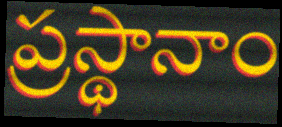
ప్రస్థానాం